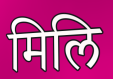
मिलि